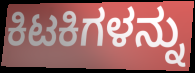
ಕಿಟಕಿಗಳನ್ನು